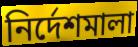
নির্দেশমালা